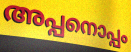
അപ്പനൊപ്പം